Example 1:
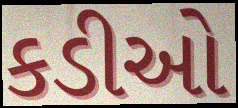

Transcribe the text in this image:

કડીઓ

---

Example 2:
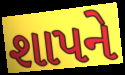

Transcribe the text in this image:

શાપને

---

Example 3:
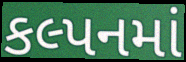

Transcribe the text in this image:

કલ્પનમાં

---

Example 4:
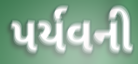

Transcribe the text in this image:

પર્યવની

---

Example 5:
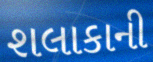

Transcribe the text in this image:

શલાકાની